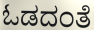
ಓಡದಂತೆ